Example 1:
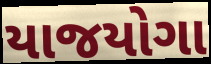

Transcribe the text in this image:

યાજયોગા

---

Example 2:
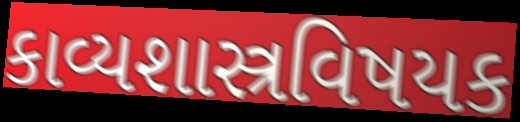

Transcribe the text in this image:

કાવ્યશાસ્ત્રવિષયક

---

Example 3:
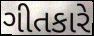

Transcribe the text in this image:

ગીતકારે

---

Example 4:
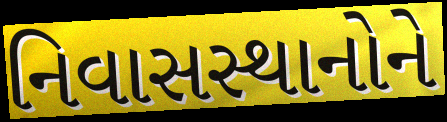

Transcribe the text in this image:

નિવાસસ્થાનોને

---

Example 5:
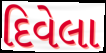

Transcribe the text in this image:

દિવેલા